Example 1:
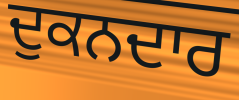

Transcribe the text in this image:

ਦੁਕਨਦਾਰ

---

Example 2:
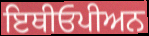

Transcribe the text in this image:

ਇਥੀਓਪੀਅਨ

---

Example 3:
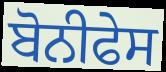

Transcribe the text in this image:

ਬੋਨੀਫੇਸ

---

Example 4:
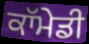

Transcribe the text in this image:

ਕਾੱਮੇਡੀ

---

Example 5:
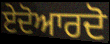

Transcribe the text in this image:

ਏਦੋਆਰਦੋ